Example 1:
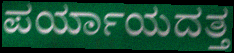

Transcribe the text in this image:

ಪರ್ಯಾಯದತ್ತ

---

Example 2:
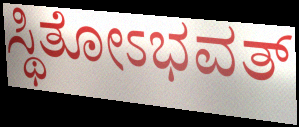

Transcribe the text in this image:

ಸ್ಥಿತೋಽಭವತ್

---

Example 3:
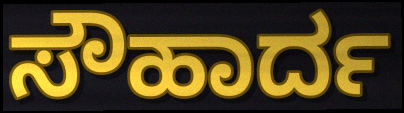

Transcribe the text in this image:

ಸೌಹಾರ್ದ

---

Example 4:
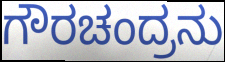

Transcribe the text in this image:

ಗೌರಚಂದ್ರನು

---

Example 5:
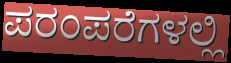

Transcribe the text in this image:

ಪರಂಪರೆಗಳಲ್ಲಿ